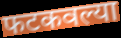
फटकवल्या